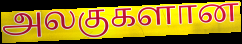
அலகுகளான